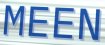
MEEN